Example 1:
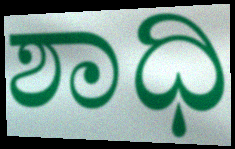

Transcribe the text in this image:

ಶಾಧಿ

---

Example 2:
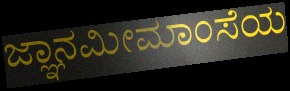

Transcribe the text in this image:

ಜ್ಞಾನಮೀಮಾಂಸೆಯ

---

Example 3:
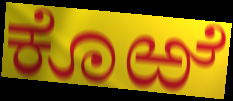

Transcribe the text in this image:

ಕೊಱೆ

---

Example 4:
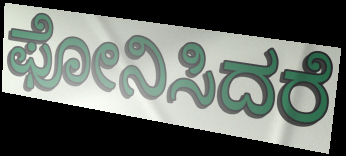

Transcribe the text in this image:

ಫೋನಿಸಿದರೆ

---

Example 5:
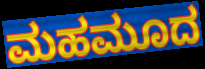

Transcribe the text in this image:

ಮಹಮೂದ